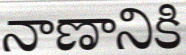
నాణానికి